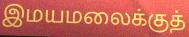
இமயமலைக்குத்